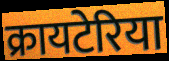
क्रायटेरिया